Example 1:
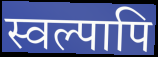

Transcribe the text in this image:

स्वल्पापि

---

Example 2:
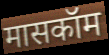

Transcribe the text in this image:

मासकॉम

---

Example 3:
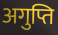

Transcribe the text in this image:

अगुप्ति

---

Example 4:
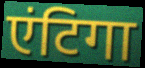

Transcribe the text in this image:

एंटिगा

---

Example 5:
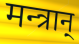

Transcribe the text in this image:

मन्त्रान्